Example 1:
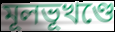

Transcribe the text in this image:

মূলভূখণ্ডে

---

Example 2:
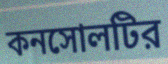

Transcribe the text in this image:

কনসোলটির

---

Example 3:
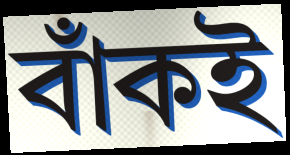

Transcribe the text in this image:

বাঁকই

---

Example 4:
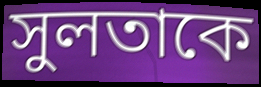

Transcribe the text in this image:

সুলতাকে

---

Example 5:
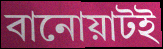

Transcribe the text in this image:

বানোয়াটই